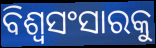
ବିଶ୍ୱସଂସାରକୁ